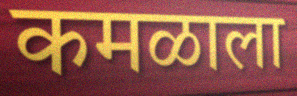
कमळाला